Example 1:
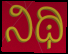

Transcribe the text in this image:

ನಿಥಿ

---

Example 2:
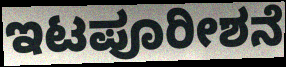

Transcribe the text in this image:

ಇಟಪೂರೀಶನೆ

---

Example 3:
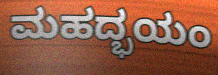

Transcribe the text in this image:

ಮಹದ್ಭಯಂ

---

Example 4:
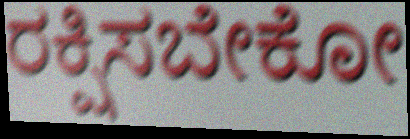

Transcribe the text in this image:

ರಕ್ಷಿಸಬೇಕೋ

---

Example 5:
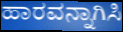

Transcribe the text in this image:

ಹಾರವನ್ನಾಗಿಸಿ